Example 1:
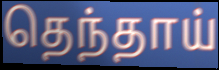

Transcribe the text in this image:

தெந்தாய்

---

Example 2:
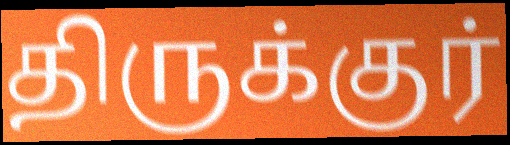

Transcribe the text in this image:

திருக்குர்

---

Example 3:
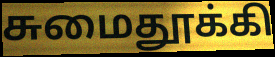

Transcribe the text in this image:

சுமைதூக்கி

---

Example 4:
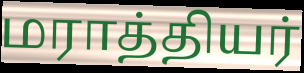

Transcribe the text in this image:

மராத்தியர்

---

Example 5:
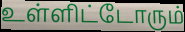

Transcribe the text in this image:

உள்ளிட்டோரும்